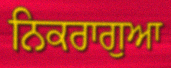
ਨਿਕਰਾਗੁਆ